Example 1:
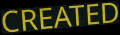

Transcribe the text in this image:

CREATED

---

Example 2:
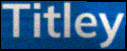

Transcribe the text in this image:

Titley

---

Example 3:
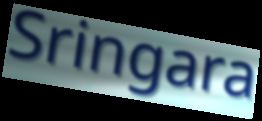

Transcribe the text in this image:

Sringara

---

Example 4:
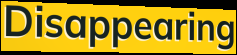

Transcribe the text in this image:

Disappearing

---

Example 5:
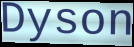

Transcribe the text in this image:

Dyson